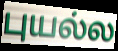
புயல்ல